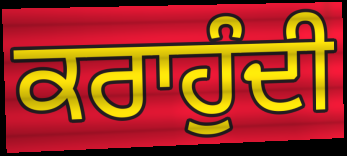
ਕਰਾਹੁੰਦੀ